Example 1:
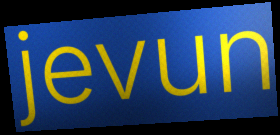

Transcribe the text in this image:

jevun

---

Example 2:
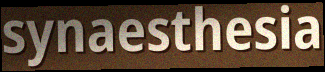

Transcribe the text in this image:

synaesthesia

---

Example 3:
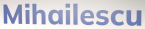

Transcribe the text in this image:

Mihailescu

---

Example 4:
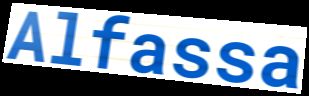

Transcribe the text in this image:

Alfassa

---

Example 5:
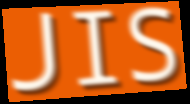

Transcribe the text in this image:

JIS